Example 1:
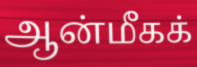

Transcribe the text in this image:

ஆன்மீகக்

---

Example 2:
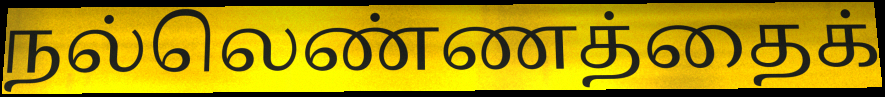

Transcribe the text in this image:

நல்லெண்ணத்தைக்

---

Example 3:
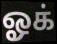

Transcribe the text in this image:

ஓக்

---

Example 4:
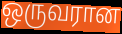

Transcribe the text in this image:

ஒருவரான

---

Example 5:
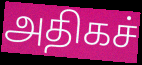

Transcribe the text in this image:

அதிகச்